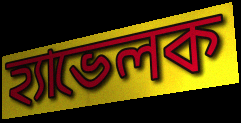
হ্যাভেলক